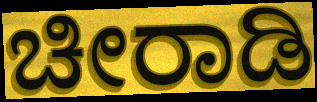
ಚೀರಾಡಿ